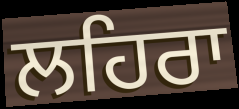
ਲਹਿਰਾ